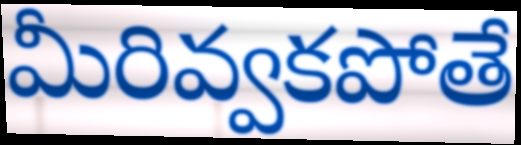
మీరివ్వకపోతే